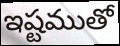
ఇష్టముతో